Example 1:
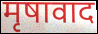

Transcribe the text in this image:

मृषावाद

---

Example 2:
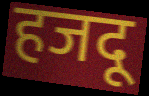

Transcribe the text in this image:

हजदू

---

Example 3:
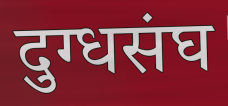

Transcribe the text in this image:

दुग्धसंघ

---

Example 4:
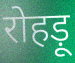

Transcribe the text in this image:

रोहड़ू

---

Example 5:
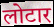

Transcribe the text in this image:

लोटार